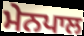
ਮੇਨਪਾਲ